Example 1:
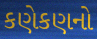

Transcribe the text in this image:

કણેકણનો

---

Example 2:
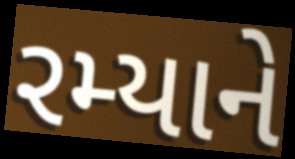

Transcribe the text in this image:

રમ્યાને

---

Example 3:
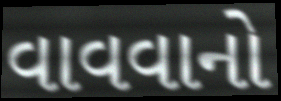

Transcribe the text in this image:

વાવવાનો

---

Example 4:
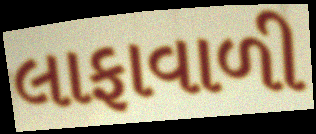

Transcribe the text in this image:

લાફાવાળી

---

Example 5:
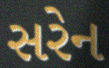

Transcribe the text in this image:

સરેન